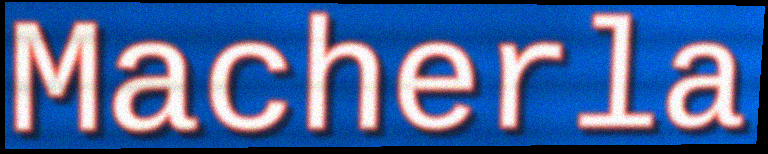
Macherla